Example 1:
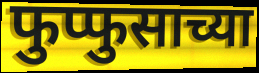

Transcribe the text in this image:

फुप्फुसाच्या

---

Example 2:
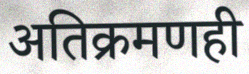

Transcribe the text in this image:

अतिक्रमणही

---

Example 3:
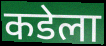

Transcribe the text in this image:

कडेला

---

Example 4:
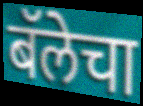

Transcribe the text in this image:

बॅलेचा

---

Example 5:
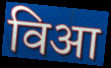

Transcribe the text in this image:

विआ